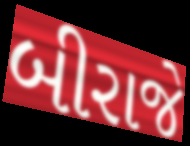
બીરાજે